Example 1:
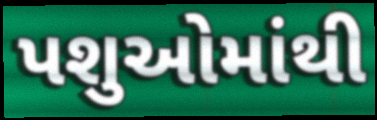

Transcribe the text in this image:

પશુઓમાંથી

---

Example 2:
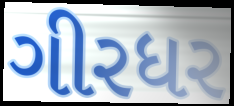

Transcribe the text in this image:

ગીરધર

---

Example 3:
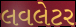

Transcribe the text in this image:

લવલેટર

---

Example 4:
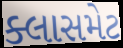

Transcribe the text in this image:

ક્લાસમેટ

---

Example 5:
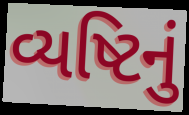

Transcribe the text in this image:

વ્યષ્ટિનું